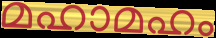
മഹാമഹം